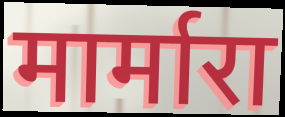
मार्मारा